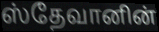
ஸ்தேவானின்